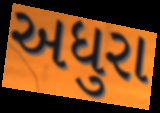
અધુરા